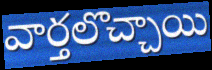
వార్తలొచ్చాయి